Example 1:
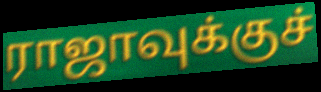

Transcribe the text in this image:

ராஜாவுக்குச்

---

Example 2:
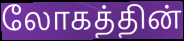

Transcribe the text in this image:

லோகத்தின்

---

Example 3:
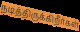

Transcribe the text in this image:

நடித்திருக்கிறீர்கள்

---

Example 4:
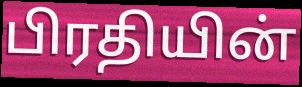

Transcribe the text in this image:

பிரதியின்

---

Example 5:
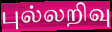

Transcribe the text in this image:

புல்லறிவு